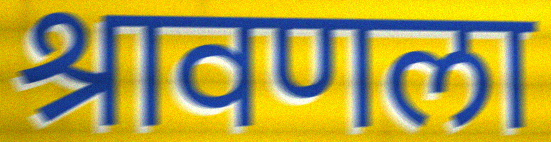
श्रावणला